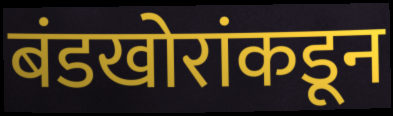
बंडखोरांकडून